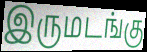
இருமடங்கு